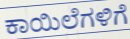
ಕಾಯಿಲೆಗಳಿಗೆ